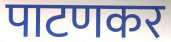
पाटणकर